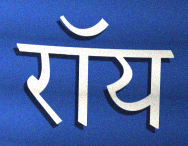
रॉय